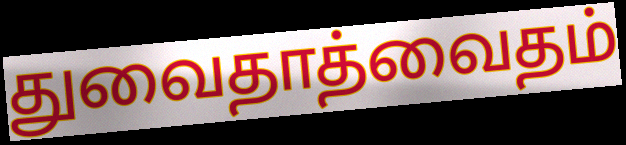
துவைதாத்வைதம்